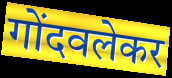
गोंदवलेकर